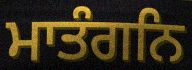
ਮਾਤੰਗਨਿ